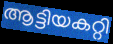
ആട്ടിയകറ്റി